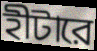
হীটারে